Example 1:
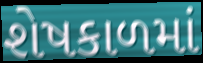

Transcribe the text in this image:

શેષકાળમાં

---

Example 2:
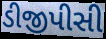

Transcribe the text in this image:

ડીજીપીસી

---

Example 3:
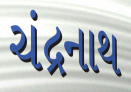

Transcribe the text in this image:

ચંદ્રનાથ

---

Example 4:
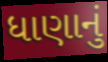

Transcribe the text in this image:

ધાણાનું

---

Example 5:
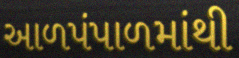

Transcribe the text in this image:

આળપંપાળમાંથી